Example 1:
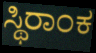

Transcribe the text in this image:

ಸ್ಥಿರಾಂಕ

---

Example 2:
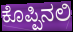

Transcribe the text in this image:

ಕೊಪ್ಪಿನಲಿ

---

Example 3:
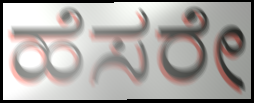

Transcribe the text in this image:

ಹೆಸರೇ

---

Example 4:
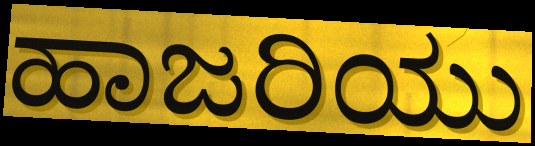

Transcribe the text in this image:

ಹಾಜರಿಯು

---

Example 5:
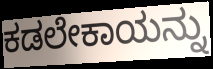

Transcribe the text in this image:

ಕಡಲೇಕಾಯನ್ನು